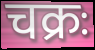
चक्रः